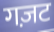
गज़ट